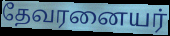
தேவரனையர்